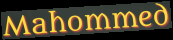
Mahommed